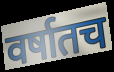
वर्षातच